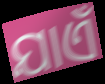
ଯାଏଁ